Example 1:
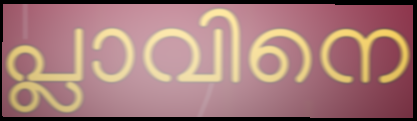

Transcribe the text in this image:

പ്ലാവിനെ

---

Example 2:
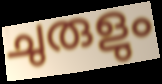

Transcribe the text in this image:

ചുരുളും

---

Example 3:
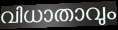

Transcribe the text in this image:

വിധാതാവും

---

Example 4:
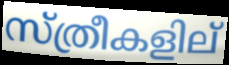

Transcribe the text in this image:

സ്ത്രീകളില്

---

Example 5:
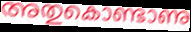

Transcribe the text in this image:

അതുകൊണ്ടാണു